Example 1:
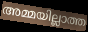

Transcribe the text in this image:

അമ്മയില്ലാത്ത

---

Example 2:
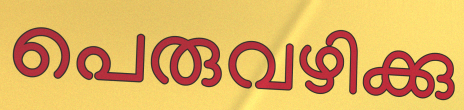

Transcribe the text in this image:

പെരുവഴിക്കു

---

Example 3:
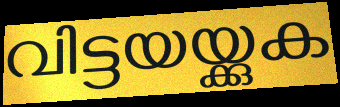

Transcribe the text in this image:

വിട്ടയയ്ക്കുക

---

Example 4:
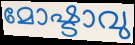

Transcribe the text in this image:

മോഷ്ടാവു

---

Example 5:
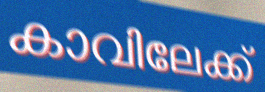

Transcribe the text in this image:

കാവിലേക്ക്